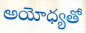
అయోధ్యతో